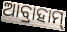
ଆବ୍ରାହାମ୍